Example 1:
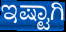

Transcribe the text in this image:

ಇಷ್ಟಾಗಿ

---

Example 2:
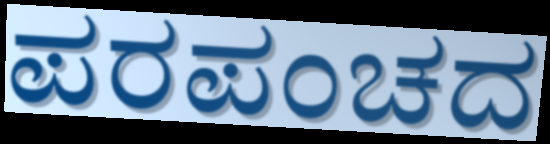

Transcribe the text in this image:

ಪರಪಂಚದ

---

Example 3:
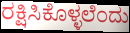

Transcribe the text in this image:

ರಕ್ಷಿಸಿಕೊಳ್ಳಲೆಂದು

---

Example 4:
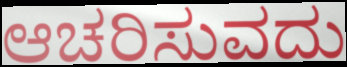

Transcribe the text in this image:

ಆಚರಿಸುವದು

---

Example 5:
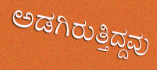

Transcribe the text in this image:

ಅಡಗಿರುತ್ತಿದ್ದವು